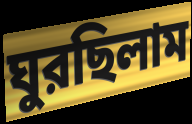
ঘুরছিলাম